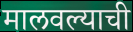
मालवल्याची